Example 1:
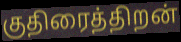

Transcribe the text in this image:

குதிரைத்திறன்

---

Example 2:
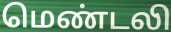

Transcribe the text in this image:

மெண்டலி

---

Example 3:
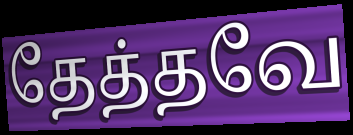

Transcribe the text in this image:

தேத்தவே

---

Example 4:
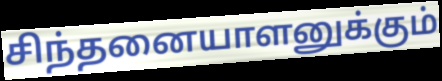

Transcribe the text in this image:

சிந்தனையாளனுக்கும்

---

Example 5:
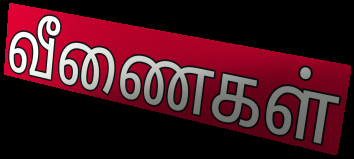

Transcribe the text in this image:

வீணைகள்